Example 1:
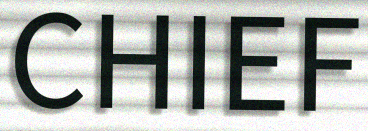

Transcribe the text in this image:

CHIEF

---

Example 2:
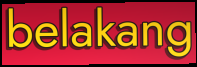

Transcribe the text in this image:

belakang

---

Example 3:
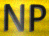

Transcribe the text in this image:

NP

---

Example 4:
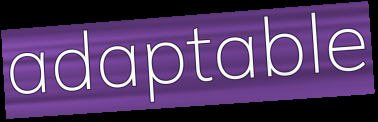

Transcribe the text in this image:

adaptable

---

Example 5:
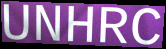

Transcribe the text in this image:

UNHRC